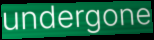
undergone